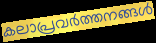
കലാപ്രവർത്തനങ്ങൾ